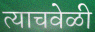
त्याचवेळी